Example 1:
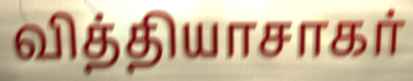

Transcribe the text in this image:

வித்தியாசாகர்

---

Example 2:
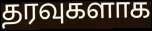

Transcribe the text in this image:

தரவுகளாக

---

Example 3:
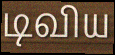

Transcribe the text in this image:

டிவிய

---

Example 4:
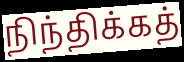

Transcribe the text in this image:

நிந்திக்கத்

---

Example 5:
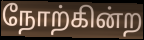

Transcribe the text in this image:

நோற்கின்ற